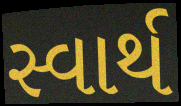
સ્વાર્થ